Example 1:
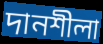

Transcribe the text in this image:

দানশীলা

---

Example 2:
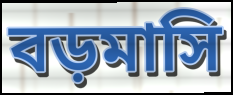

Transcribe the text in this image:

বড়মাসি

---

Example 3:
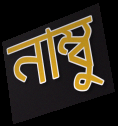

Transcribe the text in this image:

নাম্বু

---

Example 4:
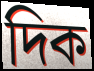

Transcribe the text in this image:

দিক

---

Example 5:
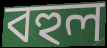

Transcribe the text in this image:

বহুল